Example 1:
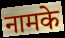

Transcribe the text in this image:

नामके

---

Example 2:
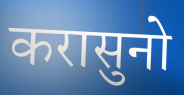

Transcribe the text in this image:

करासुनो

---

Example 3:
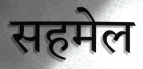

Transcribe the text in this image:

सहमेल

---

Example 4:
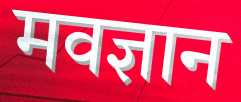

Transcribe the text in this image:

मवज्ञान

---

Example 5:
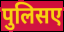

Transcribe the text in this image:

पुलिसए